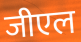
जीएल